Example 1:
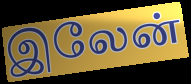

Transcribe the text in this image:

இலேன்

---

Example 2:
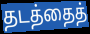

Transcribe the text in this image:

தடத்தைத்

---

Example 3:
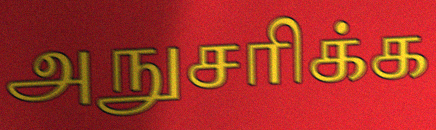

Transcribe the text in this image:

அநுசரிக்க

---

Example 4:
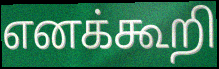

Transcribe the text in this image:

எனக்கூறி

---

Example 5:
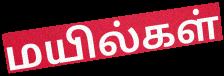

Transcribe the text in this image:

மயில்கள்